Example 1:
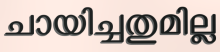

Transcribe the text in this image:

ചായിച്ചതുമില്ല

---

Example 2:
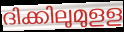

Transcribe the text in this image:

ദിക്കിലുമുളള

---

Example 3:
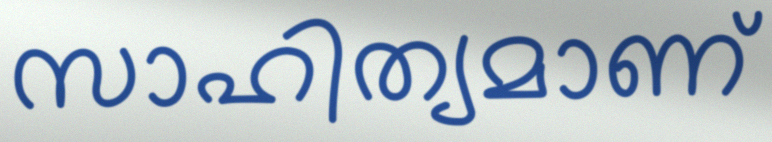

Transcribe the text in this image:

സാഹിത്യമാണ്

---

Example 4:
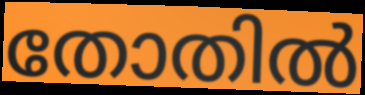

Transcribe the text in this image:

തോതിൽ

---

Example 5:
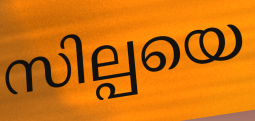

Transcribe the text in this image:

സില്പയെ